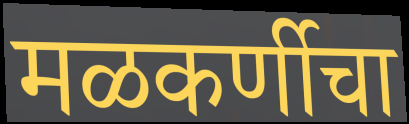
मळकर्णीचा